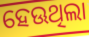
ହେଊଥିଲା